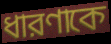
ধারণাকে